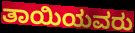
ತಾಯಿಯವರು